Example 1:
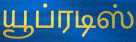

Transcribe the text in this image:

யூப்ரடிஸ்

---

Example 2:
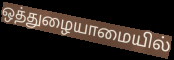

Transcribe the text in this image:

ஒத்துழையாமையில்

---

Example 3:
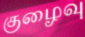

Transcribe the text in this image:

குழைவு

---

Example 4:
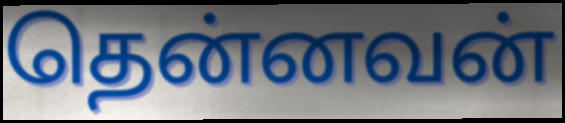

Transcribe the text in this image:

தென்னவன்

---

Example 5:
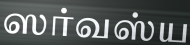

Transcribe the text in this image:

ஸர்வஸ்ய